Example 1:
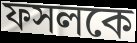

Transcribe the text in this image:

ফসলকে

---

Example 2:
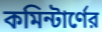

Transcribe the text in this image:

কমিন্টার্ণের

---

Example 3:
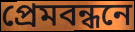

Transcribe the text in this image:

প্রেমবন্ধনে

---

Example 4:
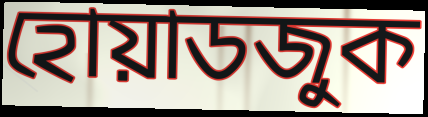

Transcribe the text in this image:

হোয়াডজুক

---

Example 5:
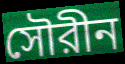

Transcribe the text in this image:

সৌরীন